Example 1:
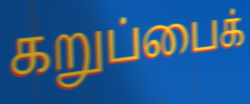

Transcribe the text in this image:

கறுப்பைக்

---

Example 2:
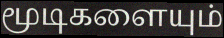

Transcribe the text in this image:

மூடிகளையும்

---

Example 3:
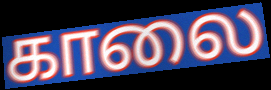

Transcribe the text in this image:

காலை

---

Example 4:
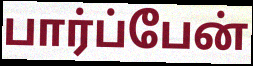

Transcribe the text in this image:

பார்ப்பேன்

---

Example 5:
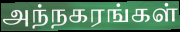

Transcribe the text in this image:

அந்நகரங்கள்